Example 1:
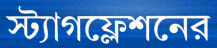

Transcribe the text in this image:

স্ট্যাগফ্লেশনের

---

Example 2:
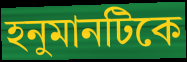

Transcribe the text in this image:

হনুমানটিকে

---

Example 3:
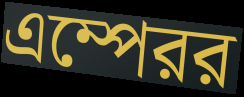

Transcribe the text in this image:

এম্পেরর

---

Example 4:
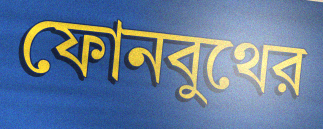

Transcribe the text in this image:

ফোনবুথের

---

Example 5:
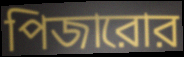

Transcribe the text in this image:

পিজারোর